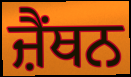
ਜ਼ੈਂਥਨ